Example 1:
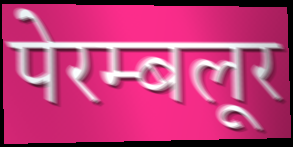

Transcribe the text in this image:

पेरम्बलूर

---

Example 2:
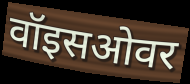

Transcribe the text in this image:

वॉइसओवर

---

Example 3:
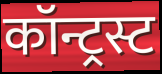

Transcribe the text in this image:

कॉन्ट्रस्ट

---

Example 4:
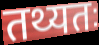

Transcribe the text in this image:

तथ्यतः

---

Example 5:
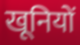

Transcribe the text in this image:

खूनियों